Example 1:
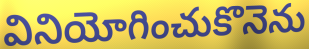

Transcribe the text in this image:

వినియోగించుకొనెను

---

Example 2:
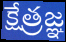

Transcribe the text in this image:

క్షేత్రజ్ఞ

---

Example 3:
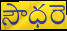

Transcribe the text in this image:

సౌధరె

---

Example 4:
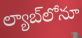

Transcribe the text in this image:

ల్యాబ్‌లోనూ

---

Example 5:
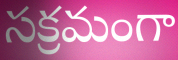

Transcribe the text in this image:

సక్రమంగా